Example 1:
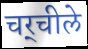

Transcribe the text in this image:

चर्चीले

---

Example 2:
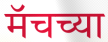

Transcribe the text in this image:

मॅचच्या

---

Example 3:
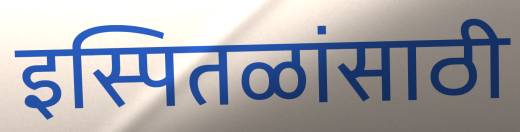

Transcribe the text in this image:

इस्पितळांसाठी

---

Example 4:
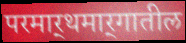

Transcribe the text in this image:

परमार्थमार्गातील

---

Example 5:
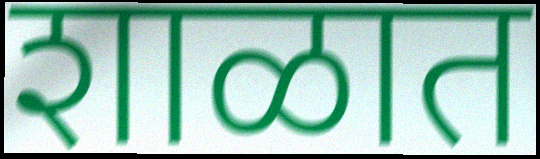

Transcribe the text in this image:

शाळात